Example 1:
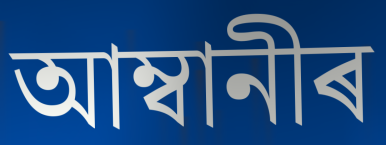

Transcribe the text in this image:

আম্বানীৰ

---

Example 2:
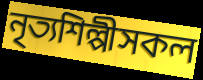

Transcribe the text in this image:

নৃত্যশিল্পীসকল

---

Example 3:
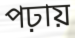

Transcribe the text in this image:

পঢ়ায়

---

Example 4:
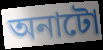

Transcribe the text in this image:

অনাটো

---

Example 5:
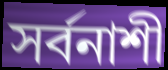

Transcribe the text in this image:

সৰ্বনাশী